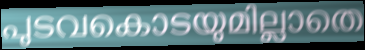
പുടവകൊടയുമില്ലാതെ